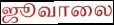
ஜூவாலை